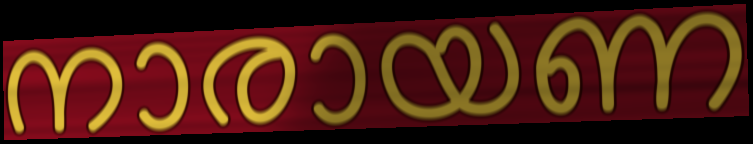
നാരായണ